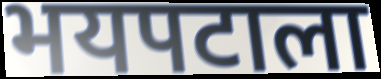
भयपटाला